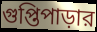
গুপ্তিপাড়ার